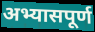
अभ्यासपूर्ण